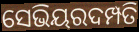
ସେଭିୟରଦମ୍ପତି